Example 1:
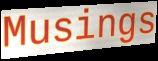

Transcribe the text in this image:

Musings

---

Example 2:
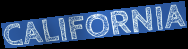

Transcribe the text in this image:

CALIFORNIA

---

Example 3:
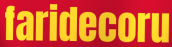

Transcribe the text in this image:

faridecoru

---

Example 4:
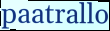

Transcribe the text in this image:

paatrallo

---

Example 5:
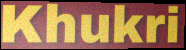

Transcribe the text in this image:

Khukri